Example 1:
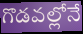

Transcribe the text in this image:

గొడవల్లోనే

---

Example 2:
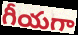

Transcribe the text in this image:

గీయగా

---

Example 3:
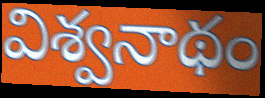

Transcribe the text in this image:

విశ్వనాథం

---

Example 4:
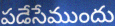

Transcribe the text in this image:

పడేసేముందు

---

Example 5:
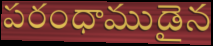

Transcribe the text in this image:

పరంధాముడైన